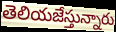
తెలియజేస్తున్నారు